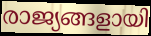
രാജ്യങ്ങളായി